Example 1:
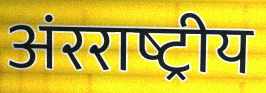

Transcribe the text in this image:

अंरराष्ट्रीय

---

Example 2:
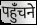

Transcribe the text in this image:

पहुंँचने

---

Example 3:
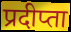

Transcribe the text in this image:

प्रदीप्ता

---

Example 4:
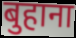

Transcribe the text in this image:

बुहाना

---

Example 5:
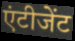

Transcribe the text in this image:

एंटीजेंट